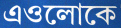
এওলোকে